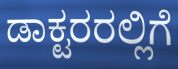
ಡಾಕ್ಟರರಲ್ಲಿಗೆ